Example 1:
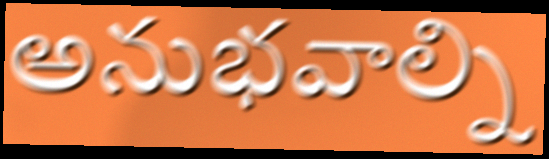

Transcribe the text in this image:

అనుభవాల్ని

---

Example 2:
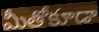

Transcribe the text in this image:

మీతోకూడా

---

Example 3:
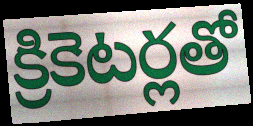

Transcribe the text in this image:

క్రికెటర్లతో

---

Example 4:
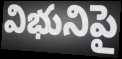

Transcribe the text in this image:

విభునిపై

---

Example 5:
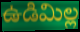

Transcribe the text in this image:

ఉడిమిల్ల